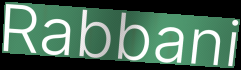
Rabbani